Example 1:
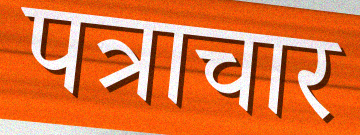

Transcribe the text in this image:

पत्राचार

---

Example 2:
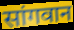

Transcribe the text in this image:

सांगवान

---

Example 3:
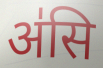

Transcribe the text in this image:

अ॑सि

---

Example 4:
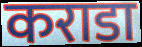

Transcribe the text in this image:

कराडा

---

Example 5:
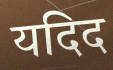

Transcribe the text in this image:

यदिद